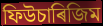
ফিউচাৰিজিম